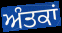
ਅੰਤਕਾਂ